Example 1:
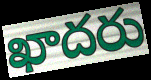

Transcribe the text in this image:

ఖాదరు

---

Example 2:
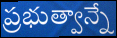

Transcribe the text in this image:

ప్రభుత్వాన్నే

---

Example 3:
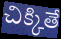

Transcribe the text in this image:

చిక్కితే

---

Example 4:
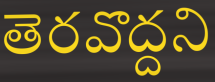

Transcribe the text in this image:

తెరవొద్దని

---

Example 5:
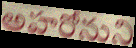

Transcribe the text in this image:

అహరోనుని